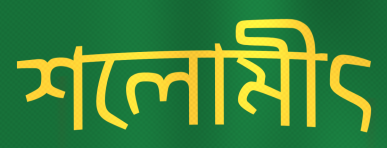
শলোমীৎ